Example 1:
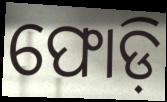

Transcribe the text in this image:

ଫୋଡ଼ି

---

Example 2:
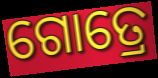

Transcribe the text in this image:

ଗୋତ୍ରେ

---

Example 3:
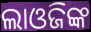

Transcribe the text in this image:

ଲାଓଜିଙ୍କ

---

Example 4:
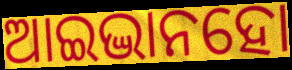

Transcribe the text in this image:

ଆଇଦ୍ଭାନହୋ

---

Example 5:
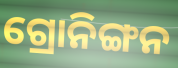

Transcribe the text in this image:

ଗ୍ରୋନିଙ୍ଗନ